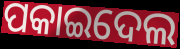
ପକାଇଦେଲ